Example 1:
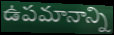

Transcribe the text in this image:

ఉపమానాన్ని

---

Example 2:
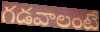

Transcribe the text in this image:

గడవాలంటే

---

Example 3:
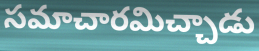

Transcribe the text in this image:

సమాచారమిచ్చాడు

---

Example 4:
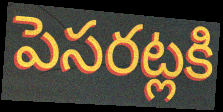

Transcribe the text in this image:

పెసరట్లకి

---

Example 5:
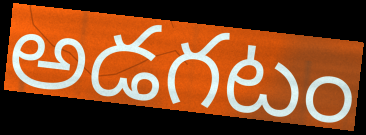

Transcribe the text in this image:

అడగటం